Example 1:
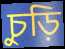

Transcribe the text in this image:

চুড়ি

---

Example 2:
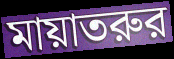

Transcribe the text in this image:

মায়াতরুর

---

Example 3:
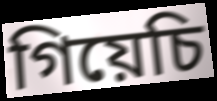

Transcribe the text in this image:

গিয়েচি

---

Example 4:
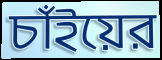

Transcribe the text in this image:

চাঁইয়ের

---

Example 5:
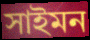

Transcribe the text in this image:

সাইমন